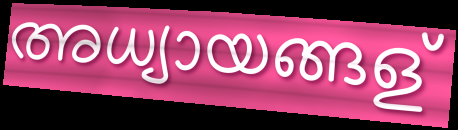
അധ്യായങ്ങള്